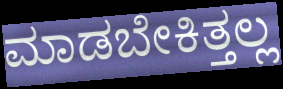
ಮಾಡಬೇಕಿತ್ತಲ್ಲ